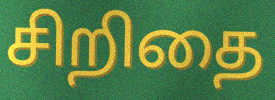
சிறிதை